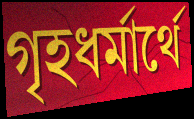
গৃহধর্মার্থে